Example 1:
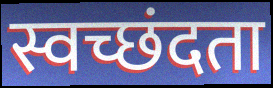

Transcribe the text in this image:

स्वच्छंदता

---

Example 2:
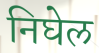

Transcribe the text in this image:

निघेल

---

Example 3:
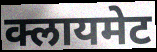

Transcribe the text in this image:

क्लायमेट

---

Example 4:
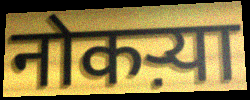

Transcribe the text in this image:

नोकऱ्‍या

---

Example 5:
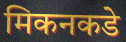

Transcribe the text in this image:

मिकनकडे